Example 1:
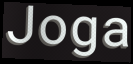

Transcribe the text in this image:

Joga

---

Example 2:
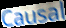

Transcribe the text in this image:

Causal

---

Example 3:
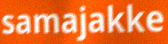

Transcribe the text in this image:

samajakke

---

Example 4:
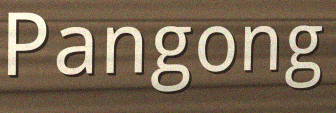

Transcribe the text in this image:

Pangong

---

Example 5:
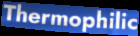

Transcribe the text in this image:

Thermophilic